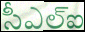
సీఎల్ఐ